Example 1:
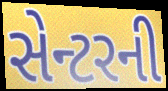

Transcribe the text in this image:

સેન્ટરની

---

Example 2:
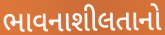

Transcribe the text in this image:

ભાવનાશીલતાનો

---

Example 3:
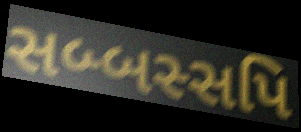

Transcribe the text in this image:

સબ્બસ્સપિ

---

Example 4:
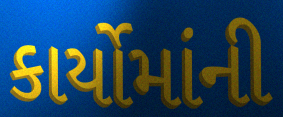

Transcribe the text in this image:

કાર્યોમાંની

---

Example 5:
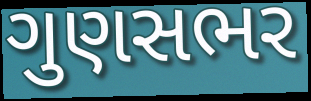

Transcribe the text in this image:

ગુણસભર